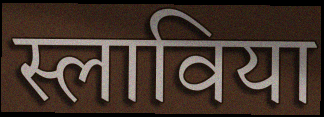
स्लाविया